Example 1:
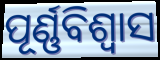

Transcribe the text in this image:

ପୂର୍ଣ୍ଣବିଶ୍ଵାସ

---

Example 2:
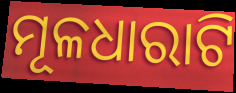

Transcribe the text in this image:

ମୂଳଧାରାଟି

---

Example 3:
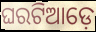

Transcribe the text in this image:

ଘରଟିଆଡ଼େ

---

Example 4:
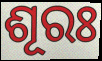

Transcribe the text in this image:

ଶୂରଃ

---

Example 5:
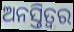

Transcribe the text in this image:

ଅନସ୍ତିତ୍ୱର